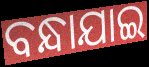
ବନ୍ଧାଯାଇ